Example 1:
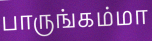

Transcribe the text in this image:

பாருங்கம்மா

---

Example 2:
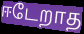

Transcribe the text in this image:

ஈடேறாத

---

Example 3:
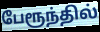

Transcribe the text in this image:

பேரூந்தில்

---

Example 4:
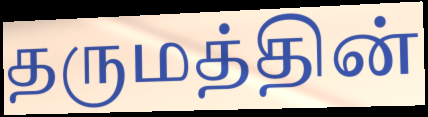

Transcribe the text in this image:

தருமத்தின்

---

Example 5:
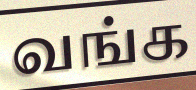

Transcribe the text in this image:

வங்க